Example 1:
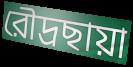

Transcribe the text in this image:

রৌদ্রছায়া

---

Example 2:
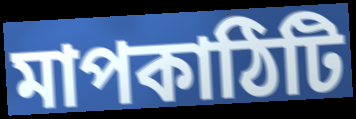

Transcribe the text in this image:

মাপকাঠিটি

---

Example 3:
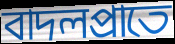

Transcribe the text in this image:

বাদলপ্রাতে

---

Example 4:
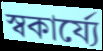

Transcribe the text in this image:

স্বকার্য্যে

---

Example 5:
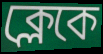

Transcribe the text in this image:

ক্লেকে